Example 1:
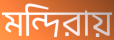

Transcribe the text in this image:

মন্দিরায়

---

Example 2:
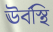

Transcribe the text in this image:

ঊর্বস্থি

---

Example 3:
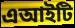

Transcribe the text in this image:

এআইটি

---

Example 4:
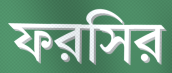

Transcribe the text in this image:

ফরসির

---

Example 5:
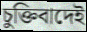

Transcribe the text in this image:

চুক্তিবাদেই